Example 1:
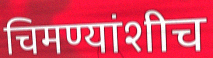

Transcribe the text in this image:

चिमण्यांशीच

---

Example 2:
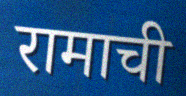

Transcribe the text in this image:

रामाची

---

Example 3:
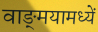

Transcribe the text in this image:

वाङ्‌मयामध्यें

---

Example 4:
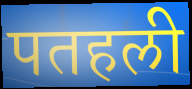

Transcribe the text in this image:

पतहली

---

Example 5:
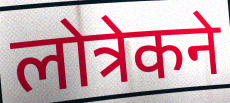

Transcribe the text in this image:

लोत्रेकने